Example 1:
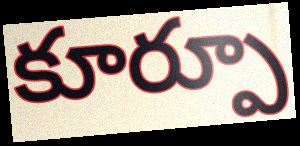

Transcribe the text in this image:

కూర్పూ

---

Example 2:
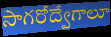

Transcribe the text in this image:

సాగరోద్వేగాలూ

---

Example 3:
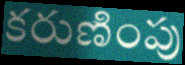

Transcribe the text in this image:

కరుణింపు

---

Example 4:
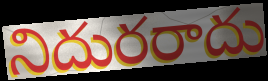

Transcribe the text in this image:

నిదురరాదు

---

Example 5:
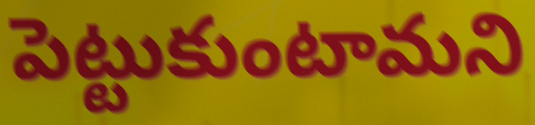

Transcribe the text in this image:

పెట్టుకుంటామని